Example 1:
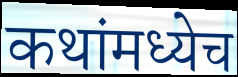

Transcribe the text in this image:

कथांमध्येच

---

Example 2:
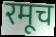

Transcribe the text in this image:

रमूच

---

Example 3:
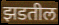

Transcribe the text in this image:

झडतील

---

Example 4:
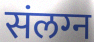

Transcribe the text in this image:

संलग्‍न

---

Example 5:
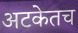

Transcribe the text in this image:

अटकेतच